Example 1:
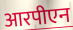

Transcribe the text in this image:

आरपीएन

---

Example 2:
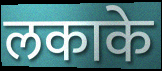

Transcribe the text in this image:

लकाके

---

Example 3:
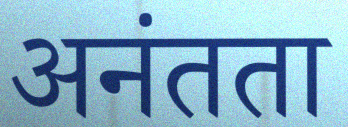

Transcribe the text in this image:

अनंतता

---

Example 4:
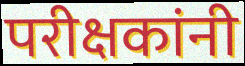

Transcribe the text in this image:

परीक्षकांनी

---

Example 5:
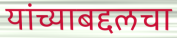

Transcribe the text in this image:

यांच्याबद्दलचा